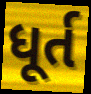
ધૂર્ત